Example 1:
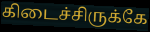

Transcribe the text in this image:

கிடைச்சிருக்கே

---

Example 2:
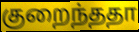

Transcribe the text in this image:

குறைந்ததா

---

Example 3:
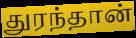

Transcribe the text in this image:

துரந்தான்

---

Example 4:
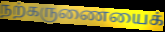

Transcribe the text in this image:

நற்கருணையைக்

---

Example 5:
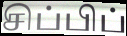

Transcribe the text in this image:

சிப்பிப்